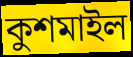
কুশমাইল